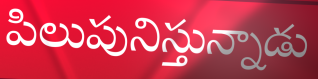
పిలుపునిస్తున్నాడు